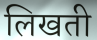
लिखती